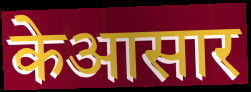
केआसार